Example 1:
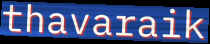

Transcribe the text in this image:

thavaraik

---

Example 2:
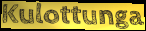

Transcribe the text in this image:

Kulottunga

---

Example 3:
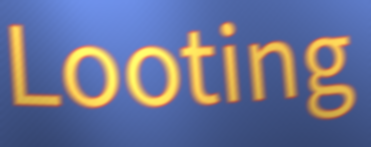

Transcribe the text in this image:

Looting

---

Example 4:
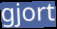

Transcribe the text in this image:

gjort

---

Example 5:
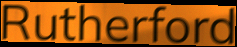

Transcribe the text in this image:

Rutherford